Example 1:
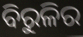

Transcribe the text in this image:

ବିରୁଳିର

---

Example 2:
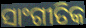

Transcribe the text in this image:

ସାଂଗୀତିକ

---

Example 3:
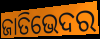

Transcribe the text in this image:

ଜାତିଭେଦର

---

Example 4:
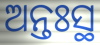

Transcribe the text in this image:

ଅନ୍ତଃସ୍ଥ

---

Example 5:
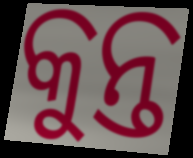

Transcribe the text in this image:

କୁନ୍ତ